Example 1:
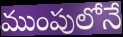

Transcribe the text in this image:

ముంపులోనే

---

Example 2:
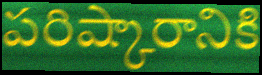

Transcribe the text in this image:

పరిష్కారానికి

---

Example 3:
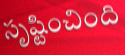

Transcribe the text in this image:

సృష్టించింది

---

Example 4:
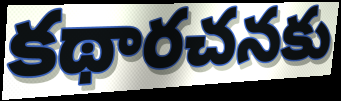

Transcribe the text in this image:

కథారచనకు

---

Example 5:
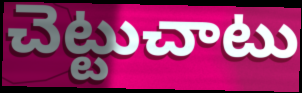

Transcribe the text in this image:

చెట్టుచాటు